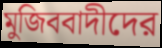
মুজিববাদীদের